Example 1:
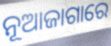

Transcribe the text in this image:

ନୂଆଜାଗାରେ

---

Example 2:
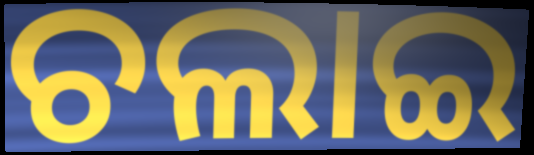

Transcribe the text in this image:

ଚଲାଇ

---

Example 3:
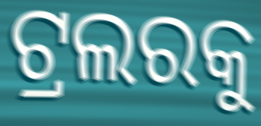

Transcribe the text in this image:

ଟ୍ରଲରକୁ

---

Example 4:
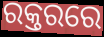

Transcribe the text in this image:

ରକ୍ତରରେ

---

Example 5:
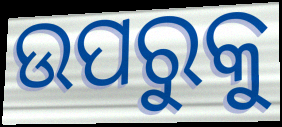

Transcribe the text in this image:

ଉପରୁକୁ